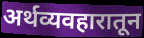
अर्थव्यवहारातून